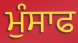
ਮੁੰਸਾਫ